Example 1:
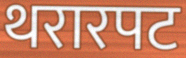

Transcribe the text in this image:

थरारपट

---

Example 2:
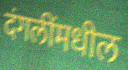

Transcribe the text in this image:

दंगलींमधील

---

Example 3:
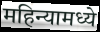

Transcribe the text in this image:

महिन्यामध्ये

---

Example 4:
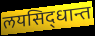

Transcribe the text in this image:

लयसिद्धान्त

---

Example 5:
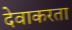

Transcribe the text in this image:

देवाकरता